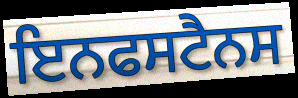
ਇਨਫਸਟੈਨਸ